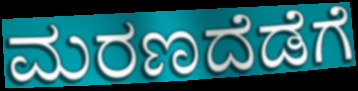
ಮರಣದೆಡೆಗೆ